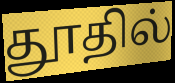
தூதில்